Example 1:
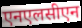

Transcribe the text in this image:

एनएलसीएन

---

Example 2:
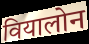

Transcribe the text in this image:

वियालोन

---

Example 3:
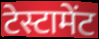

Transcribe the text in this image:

टेस्टामेंट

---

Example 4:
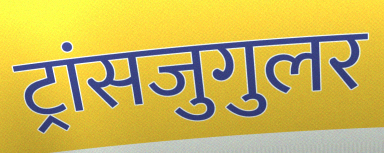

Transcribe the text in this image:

ट्रांसजुगुलर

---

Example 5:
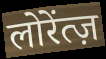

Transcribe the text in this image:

लोरेंत्ज़